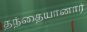
தந்தையானார்